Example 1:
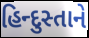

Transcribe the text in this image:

હિન્દુસ્તાને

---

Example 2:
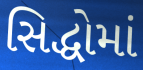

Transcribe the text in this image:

સિદ્ધોમાં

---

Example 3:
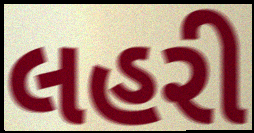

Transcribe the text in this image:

લહરી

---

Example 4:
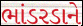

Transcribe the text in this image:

ભાંડરડાને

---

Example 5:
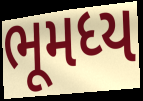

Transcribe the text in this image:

ભૂમધ્ય